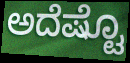
ಅದೆಷ್ಟೊ